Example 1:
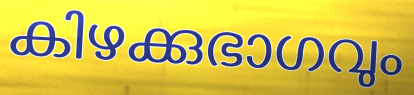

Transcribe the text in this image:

കിഴക്കുഭാഗവും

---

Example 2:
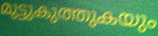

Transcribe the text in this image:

മുട്ടുകുത്തുകയും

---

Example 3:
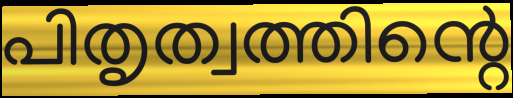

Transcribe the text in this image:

പിതൃത്വത്തിന്റെ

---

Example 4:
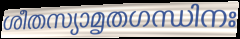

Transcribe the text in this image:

ശീതസ്യാമൃതഗന്ധിനഃ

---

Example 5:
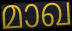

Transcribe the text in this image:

മാഖ